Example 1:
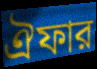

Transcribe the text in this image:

ঐফার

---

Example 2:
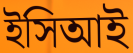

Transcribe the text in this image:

ইসিআই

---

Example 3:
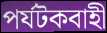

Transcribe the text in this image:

পর্যটকবাহী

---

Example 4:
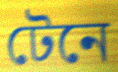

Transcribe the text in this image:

টেনে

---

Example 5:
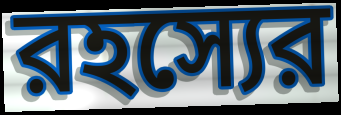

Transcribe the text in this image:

রহস্যের